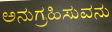
ಅನುಗ್ರಹಿಸುವನು